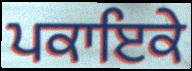
ਪਕਾਇਕੇ